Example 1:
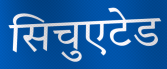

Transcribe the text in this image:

सिचुएटेड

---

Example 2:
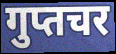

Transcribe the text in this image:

गुप्तचर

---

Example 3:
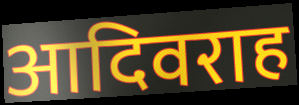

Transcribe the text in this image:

आदिवराह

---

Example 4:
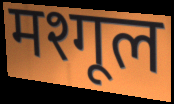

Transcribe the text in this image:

मश्गूल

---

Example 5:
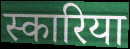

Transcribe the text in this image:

स्कारिया